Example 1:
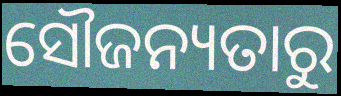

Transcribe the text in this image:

ସୌଜନ୍ୟତାରୁ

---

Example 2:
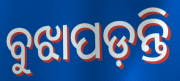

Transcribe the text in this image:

ବୁଝାପଡ଼ନ୍ତି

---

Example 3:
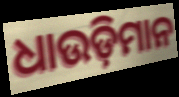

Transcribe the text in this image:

ଧାଉଡ଼ିମାନ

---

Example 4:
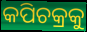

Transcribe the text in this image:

କପିଚକ୍ରକୁ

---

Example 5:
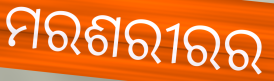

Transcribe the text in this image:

ମରଶରୀରର